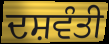
ਦਸ਼ਵੰਤੀ